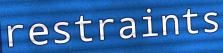
restraints